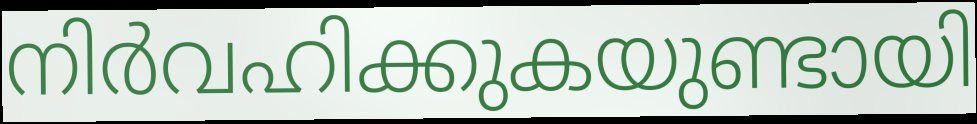
നിർവഹിക്കുകയുണ്ടായി